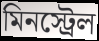
মিনস্ট্রেল